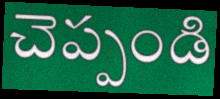
చెప్పండి